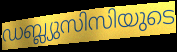
ഡബ്ല്യുസിസിയുടെ